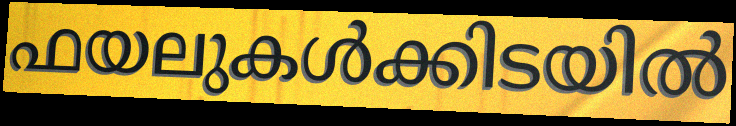
ഫയലുകൾക്കിടയിൽ